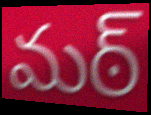
మఠ్